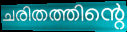
ചരിതത്തിന്റെ